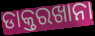
ଡାକ୍ତରଖାନା